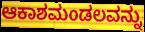
ಆಕಾಶಮಂಡಲವನ್ನು